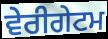
ਵੇਰੀਗੇਟਮ